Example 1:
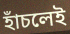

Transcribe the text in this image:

হাঁচলেই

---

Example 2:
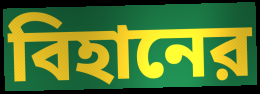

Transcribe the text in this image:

বিহানের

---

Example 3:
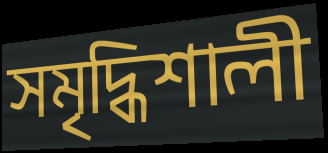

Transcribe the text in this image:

সমৃদ্ধিশালী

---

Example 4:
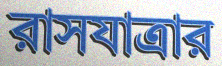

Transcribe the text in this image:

রাসযাত্রার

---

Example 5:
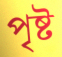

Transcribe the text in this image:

পৃষ্ট